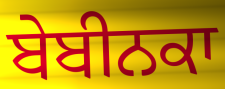
ਬੇਬੀਨਕਾ